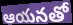
ఆయనతో